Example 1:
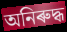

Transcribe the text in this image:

অনিৰুদ্ধ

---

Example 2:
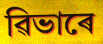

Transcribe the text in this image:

ৱিভাৰে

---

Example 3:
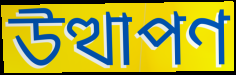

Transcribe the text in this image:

উত্থাপণ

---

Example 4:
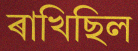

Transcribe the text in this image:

ৰাখিছিল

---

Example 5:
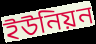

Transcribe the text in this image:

ইউনিয়ন